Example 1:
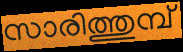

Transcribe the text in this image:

സാരിത്തുമ്പ്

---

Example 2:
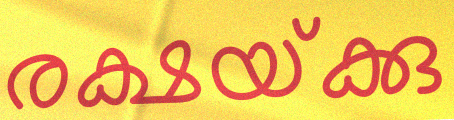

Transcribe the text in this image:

രക്ഷയ്‌ക്കു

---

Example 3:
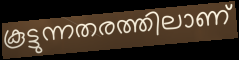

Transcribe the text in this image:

കൂട്ടുന്നതരത്തിലാണ്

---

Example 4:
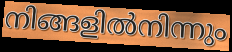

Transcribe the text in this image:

നിങ്ങളിൽനിന്നും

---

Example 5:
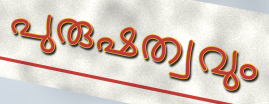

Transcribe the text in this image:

പുരുഷത്വവും